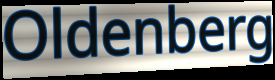
Oldenberg